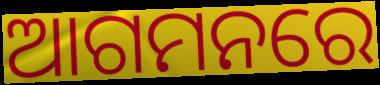
ଆଗମନରେ